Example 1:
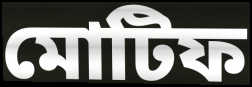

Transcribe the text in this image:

মোটিফ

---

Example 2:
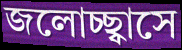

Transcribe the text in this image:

জলোচ্ছ্বাসে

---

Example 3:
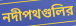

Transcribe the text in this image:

নদীপথগুলির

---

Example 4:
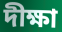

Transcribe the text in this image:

দীক্ষা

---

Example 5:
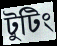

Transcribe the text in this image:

টুটিং